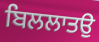
ਬਿਲਲਾਤਉ